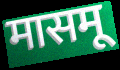
मासमू